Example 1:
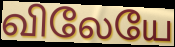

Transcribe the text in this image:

விலேயே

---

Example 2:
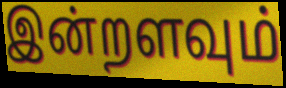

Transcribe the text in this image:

இன்றளவும்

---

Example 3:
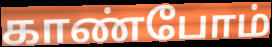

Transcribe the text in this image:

காண்போம்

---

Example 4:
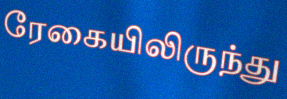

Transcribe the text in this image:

ரேகையிலிருந்து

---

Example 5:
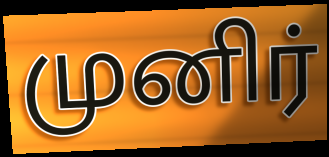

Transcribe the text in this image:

முனிர்